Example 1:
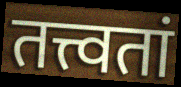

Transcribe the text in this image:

तत्त्वतां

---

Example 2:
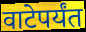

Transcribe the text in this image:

वाटेपर्यंत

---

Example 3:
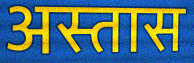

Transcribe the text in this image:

अस्तास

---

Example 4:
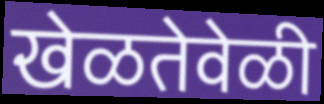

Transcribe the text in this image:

खेळतेवेळी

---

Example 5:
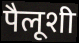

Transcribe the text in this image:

पैलूशी